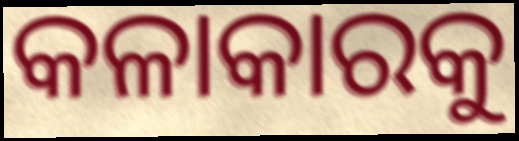
କଳାକାରକୁ